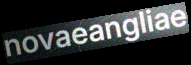
novaeangliae